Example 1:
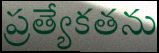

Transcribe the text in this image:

ప్రత్యేకతను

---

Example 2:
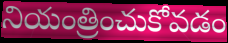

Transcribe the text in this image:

నియంత్రించుకోవడం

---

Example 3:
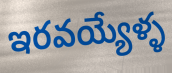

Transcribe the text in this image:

ఇరవయ్యేళ్ళ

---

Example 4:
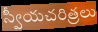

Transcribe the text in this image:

స్వీయచరిత్రలు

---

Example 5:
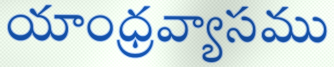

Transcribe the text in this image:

యాంధ్రవ్యాసము